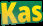
Kas